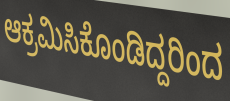
ಆಕ್ರಮಿಸಿಕೊಂಡಿದ್ದರಿಂದ